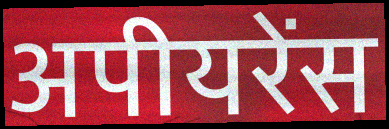
अपीयरेंस